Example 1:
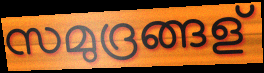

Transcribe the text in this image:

സമുദ്രങ്ങള്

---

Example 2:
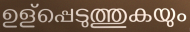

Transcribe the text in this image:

ഉള്പ്പെടുത്തുകയും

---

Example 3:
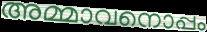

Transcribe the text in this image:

അമ്മാവനൊപ്പം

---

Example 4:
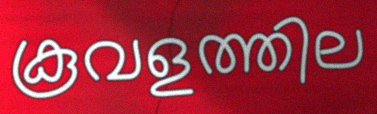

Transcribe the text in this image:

കൂവളത്തില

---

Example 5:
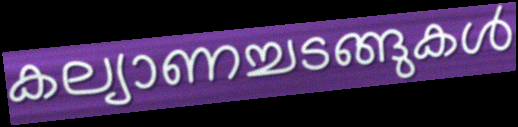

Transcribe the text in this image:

കല്യാണച്ചടങ്ങുകൾ